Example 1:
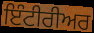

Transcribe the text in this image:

ਇੰਟੀਰੀਅਰ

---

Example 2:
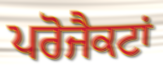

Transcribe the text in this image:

ਪਰੋਜੈਕਟਾਂ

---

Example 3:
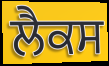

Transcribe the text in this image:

ਲੈਕਸ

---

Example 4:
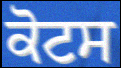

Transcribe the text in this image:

ਕੋਟਸ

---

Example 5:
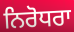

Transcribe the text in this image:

ਨਿਰੋਧਰਾ